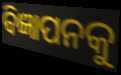
ବିଜ୍ଞାପନକୁ